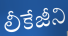
లీకేజీని